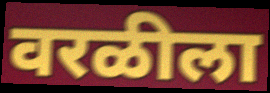
वरळीला